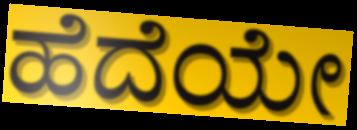
ಹೆದೆಯೇ